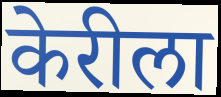
केरीला